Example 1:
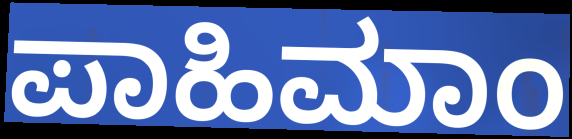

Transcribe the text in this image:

ಪಾಹಿಮಾಂ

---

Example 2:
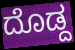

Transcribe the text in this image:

ದೊಡ್ದ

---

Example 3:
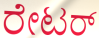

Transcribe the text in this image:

ರೇಟರ್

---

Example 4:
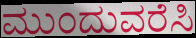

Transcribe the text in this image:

ಮುಂದುವರೆಸಿ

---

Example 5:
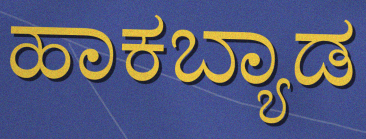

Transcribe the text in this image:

ಹಾಕಬ್ಯಾಡ